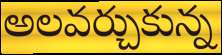
అలవర్చుకున్న